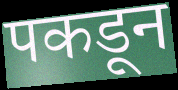
पकडून